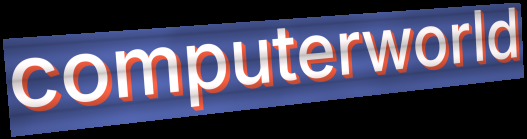
computerworld